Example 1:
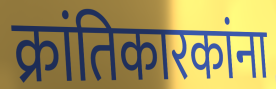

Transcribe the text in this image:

क्रांतिकारकांना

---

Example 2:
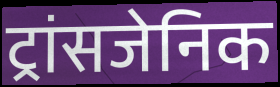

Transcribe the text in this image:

ट्रांसजेनिक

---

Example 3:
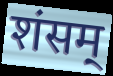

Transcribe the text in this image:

शंसम्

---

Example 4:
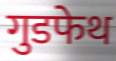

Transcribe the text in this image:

गुडफेथ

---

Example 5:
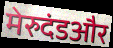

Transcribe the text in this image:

मेरुदंडऔर